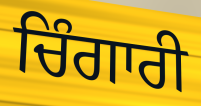
ਚਿੰਗਾਰੀ